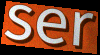
ser